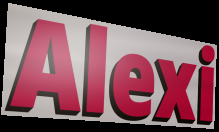
Alexi